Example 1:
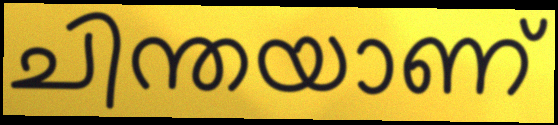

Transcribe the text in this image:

ചിന്തയാണ്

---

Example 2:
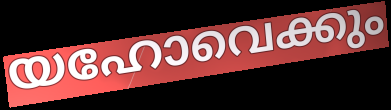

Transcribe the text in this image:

യഹോവെക്കും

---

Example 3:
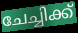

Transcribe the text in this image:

ചേച്ചിക്ക്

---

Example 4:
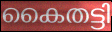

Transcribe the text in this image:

കൈതട്ടി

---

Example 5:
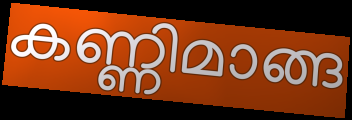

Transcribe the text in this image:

കണ്ണിമാങ്ങ